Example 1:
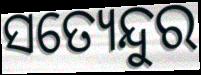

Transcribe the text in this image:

ସତ୍ୟେନ୍ଦୁର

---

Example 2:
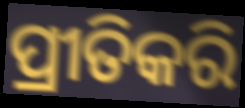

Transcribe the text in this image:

ପ୍ରୀତିକରି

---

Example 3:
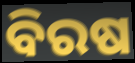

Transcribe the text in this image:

ବିରଷ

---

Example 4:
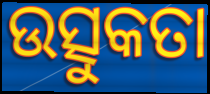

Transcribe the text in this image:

ଉତ୍ସୁକତା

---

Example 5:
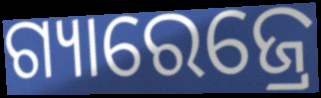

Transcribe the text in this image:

ଗ୍ୟାରେଜ୍ରେ